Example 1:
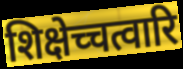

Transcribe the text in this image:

शिक्षेच्चत्वारि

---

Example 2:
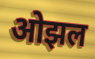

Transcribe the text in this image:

ओझल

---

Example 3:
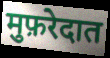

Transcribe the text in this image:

मुफ़रेदात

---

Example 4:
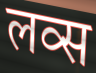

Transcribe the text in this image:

लव्स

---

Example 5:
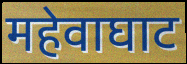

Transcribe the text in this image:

महेवाघाट